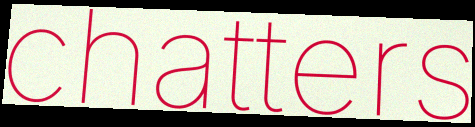
chatters